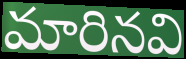
మారినవి